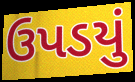
ઉપડયું